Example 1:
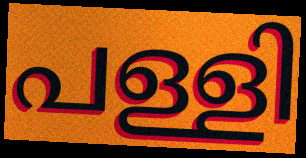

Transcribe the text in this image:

പള്ളി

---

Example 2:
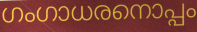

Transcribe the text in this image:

ഗംഗാധരനൊപ്പം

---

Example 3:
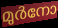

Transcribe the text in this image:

മുർനോ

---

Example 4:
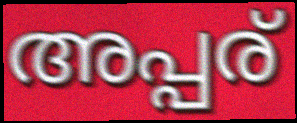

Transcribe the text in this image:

അപ്പര്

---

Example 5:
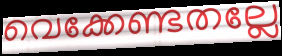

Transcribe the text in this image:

വെക്കേണ്ടതല്ലേ